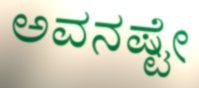
ಅವನಷ್ಟೇ